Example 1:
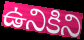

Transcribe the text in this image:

ఉనికిని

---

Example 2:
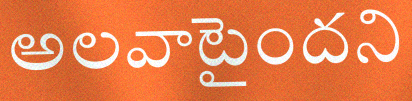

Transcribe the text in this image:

అలవాటైందని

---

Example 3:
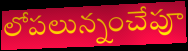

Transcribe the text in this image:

లోపలున్నంచేపూ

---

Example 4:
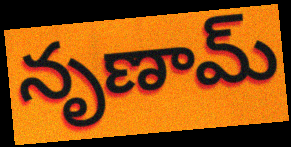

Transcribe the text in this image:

నృణామ్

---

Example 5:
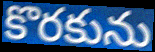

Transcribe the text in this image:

కొరకును